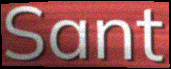
Sant